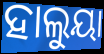
ହାଲୁୟା